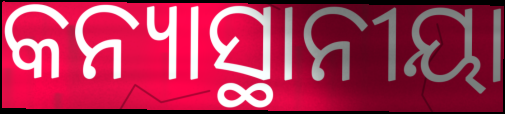
କନ୍ୟାସ୍ଥାନୀୟା